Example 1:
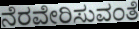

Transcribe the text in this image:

ನೆರವೇರಿಸುವಂತೆ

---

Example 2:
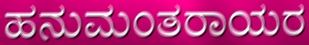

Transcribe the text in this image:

ಹನುಮಂತರಾಯರ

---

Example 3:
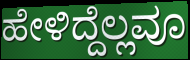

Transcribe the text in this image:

ಹೇಳಿದ್ದೆಲ್ಲವೂ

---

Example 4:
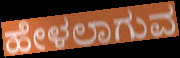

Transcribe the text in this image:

ಹೇಳಲಾಗುವ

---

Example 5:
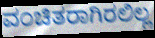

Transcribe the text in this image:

ವಂಚಿತರಾಗಿರಲಿಲ್ಲ